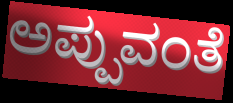
ಅಪ್ಪುವಂತೆ